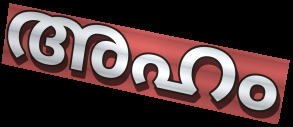
അഹം